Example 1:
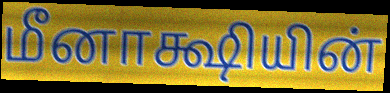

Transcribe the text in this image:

மீனாக்ஷியின்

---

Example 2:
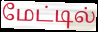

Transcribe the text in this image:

மேட்டில்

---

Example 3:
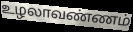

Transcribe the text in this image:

உழலாவண்ணம்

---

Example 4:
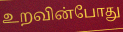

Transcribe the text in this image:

உறவின்போது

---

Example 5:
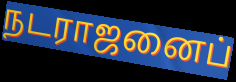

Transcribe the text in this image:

நடராஜனைப்